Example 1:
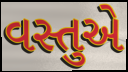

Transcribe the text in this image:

વસ્તુએ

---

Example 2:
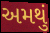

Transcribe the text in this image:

અમથું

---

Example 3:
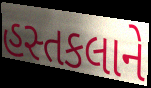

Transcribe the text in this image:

હસ્તકલાને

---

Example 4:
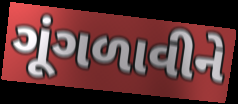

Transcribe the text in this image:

ગૂંગળાવીને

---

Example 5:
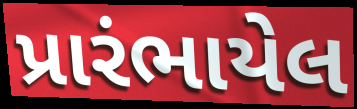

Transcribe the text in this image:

પ્રારંભાયેલ